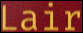
Lair